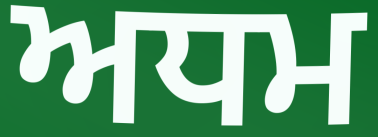
ਅਧਮ